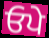
ਓਪੇ